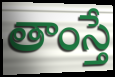
తాంస్తే